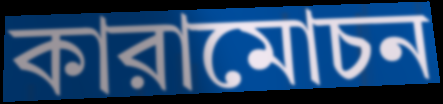
কারামোচন